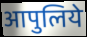
आपुलिये